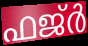
ഫജ്ർ